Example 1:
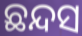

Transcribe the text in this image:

ଛନ୍ଦସ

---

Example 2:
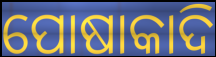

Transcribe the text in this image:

ପୋଷାକାଦି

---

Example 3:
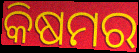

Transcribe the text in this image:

କିଷମର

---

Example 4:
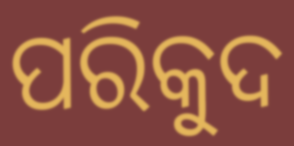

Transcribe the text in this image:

ପରିକୁଦ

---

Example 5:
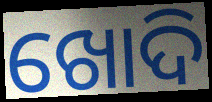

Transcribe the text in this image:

ଖୋଦି